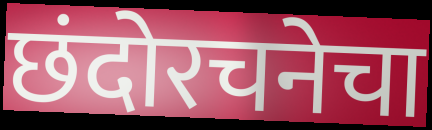
छंदोरचनेचा